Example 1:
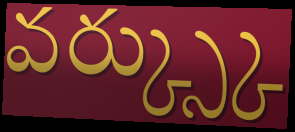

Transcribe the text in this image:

వర్క్స్కు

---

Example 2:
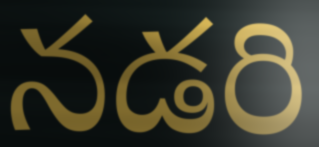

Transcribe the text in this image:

నడరి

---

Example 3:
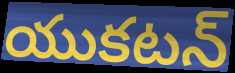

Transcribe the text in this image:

యుకటన్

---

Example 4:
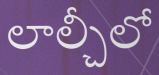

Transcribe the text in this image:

లాల్చీలో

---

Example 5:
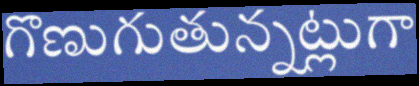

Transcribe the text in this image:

గొణుగుతున్నట్లుగా